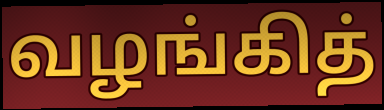
வழங்கித்